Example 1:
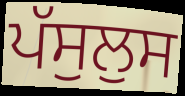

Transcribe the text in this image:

ਪੱਸੁਲੁਸ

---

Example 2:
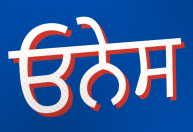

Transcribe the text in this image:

ਓਨੇਸ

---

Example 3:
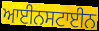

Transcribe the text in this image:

ਆਈਨਸਟਾਈਨ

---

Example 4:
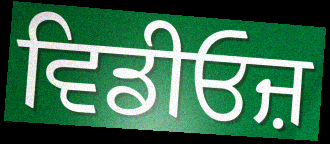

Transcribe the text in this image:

ਵਿਡੀਓਜ਼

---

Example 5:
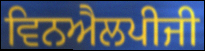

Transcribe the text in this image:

ਵਿਨਐਲਪੀਜੀ